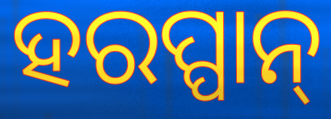
ହରପ୍ପାନ୍